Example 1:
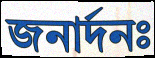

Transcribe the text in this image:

জনার্দনঃ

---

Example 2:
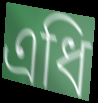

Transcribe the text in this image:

এধি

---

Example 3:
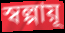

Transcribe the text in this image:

স্বল্পায়ূ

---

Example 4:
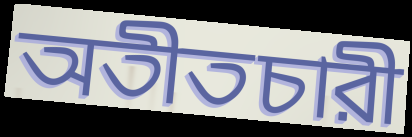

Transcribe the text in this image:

অতীতচারী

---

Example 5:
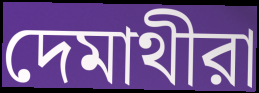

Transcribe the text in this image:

দেমাথীরা